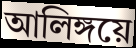
আলিঙ্গয়ে